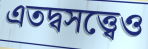
এতদ্বসত্ত্বেও